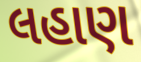
લહાણ